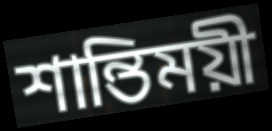
শান্তিময়ী